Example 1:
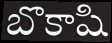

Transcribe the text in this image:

బొకాషి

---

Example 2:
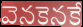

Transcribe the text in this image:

వెనకెనకే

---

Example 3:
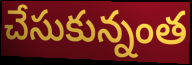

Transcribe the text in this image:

చేసుకున్నంత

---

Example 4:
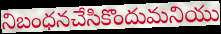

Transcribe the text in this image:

నిబంధనచేసికొందుమనియు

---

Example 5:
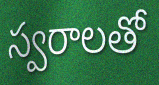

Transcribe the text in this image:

స్వరాలతో